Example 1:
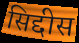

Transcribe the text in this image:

सिद्दीस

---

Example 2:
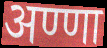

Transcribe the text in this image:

अण्णा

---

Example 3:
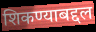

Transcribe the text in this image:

शिकण्याबद्दल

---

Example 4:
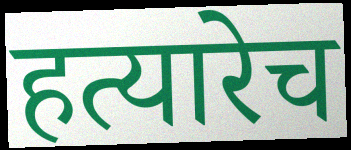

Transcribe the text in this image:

हत्यारेच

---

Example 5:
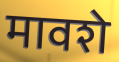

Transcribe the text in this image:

मावशे